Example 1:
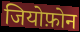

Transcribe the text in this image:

जियोफ़ोन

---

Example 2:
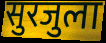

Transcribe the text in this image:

सुरजुला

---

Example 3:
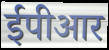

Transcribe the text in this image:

ईपीआर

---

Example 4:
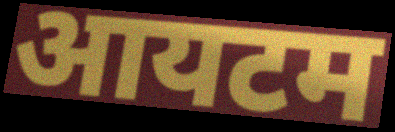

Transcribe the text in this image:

आयटम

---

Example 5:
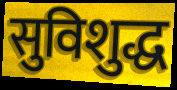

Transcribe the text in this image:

सुविशुद्ध